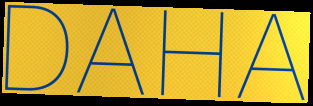
DAHA